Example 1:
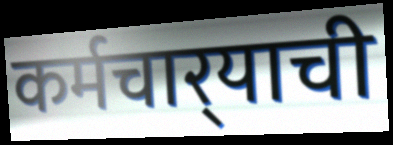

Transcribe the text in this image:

कर्मचार्‍याची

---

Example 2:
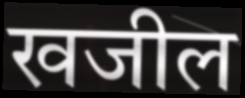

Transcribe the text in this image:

खजील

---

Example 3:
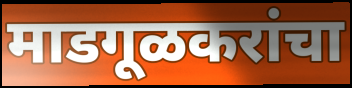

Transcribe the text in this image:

माडगूळकरांचा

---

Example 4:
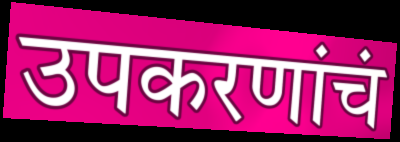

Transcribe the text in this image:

उपकरणांचं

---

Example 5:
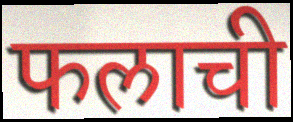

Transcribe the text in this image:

फलाची